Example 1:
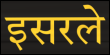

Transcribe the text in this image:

इसरले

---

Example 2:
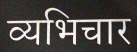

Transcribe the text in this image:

व्यभिचार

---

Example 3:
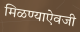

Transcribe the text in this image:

मिळण्याऐवजी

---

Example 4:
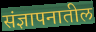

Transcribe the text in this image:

संज्ञापनातील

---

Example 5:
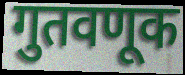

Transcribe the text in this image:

गुतवणूक